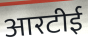
आरटीई